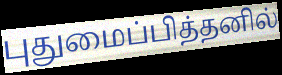
புதுமைப்பித்தனில்